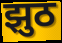
झुठ